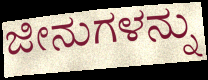
ಜೀನುಗಳನ್ನು